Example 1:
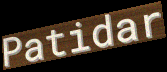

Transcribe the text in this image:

Patidar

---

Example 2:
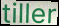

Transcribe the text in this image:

tiller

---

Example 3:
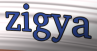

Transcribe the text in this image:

zigya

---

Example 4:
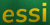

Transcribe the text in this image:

essi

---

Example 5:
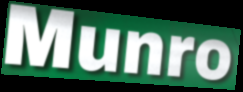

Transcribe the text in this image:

Munro